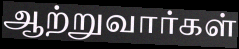
ஆற்றுவார்கள்